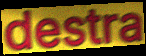
destra